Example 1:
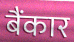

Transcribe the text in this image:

बैंकार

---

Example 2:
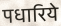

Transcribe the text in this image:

पधारिये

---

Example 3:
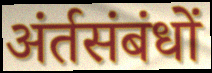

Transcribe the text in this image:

अंर्तसंबंधों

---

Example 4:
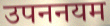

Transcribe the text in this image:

उपननयम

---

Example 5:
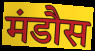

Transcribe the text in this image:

मंडौस